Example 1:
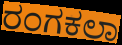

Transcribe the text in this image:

ರಂಗಕಲಾ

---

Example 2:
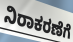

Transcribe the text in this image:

ನಿರಾಕರಣೆಗೆ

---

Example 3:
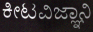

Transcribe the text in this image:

ಕೀಟವಿಜ್ಞಾನಿ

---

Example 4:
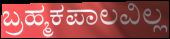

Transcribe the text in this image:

ಬ್ರಹ್ಮಕಪಾಲವಿಲ್ಲ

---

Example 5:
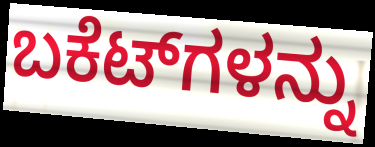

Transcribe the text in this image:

ಬಕೆಟ್‌ಗಳನ್ನು